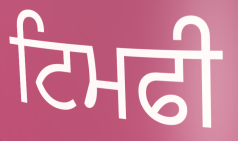
ਟਿਮਫੀ